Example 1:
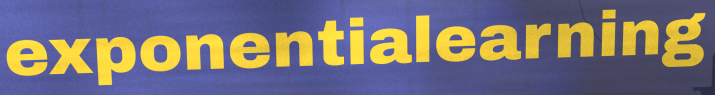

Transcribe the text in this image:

exponentialearning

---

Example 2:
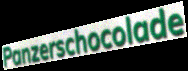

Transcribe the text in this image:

Panzerschocolade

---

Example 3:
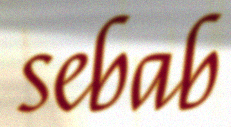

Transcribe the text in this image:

sebab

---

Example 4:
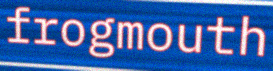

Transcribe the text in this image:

frogmouth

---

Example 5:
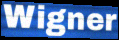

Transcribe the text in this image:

Wigner